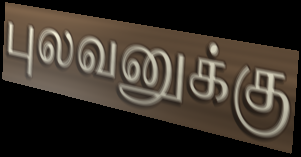
புலவனுக்கு